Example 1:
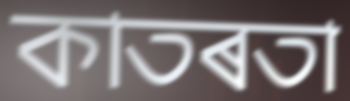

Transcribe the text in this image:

কাতৰতা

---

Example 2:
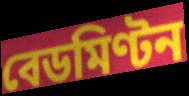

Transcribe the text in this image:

বেডমিণ্টন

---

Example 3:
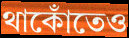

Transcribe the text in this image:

থাকোঁতেও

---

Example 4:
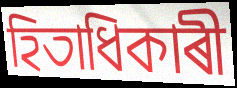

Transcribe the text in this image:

হিতাধিকাৰী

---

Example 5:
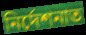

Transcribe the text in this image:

নিৰ্দেশনাত